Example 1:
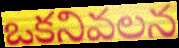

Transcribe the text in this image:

ఒకనివలన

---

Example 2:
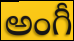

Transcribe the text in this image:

అంగీ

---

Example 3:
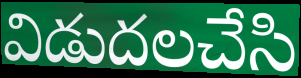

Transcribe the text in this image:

విడుదలచేసి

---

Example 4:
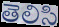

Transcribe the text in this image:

తెలిసి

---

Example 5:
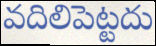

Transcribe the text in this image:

వదిలిపెట్టదు